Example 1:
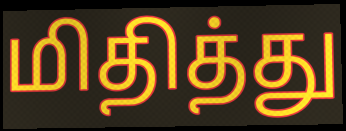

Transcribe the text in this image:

மிதித்து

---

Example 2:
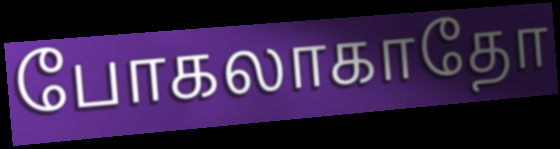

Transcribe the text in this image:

போகலாகாதோ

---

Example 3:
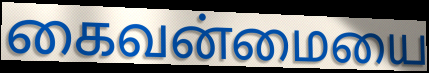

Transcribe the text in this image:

கைவன்மையை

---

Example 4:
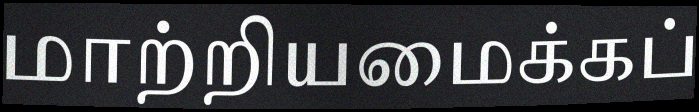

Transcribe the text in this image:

மாற்றியமைக்கப்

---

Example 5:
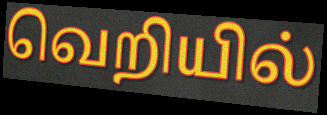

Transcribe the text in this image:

வெறியில்